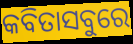
କବିତାସବୁରେ